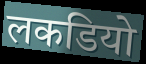
लकडियो